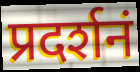
प्रदर्शनं